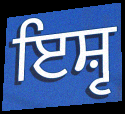
ਇਸ਼੍ਟ